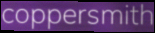
coppersmith